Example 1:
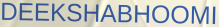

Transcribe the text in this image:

DEEKSHABHOOMI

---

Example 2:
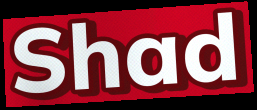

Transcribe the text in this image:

Shad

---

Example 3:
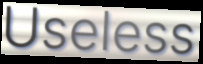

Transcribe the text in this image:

Useless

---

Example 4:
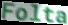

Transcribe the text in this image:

Folta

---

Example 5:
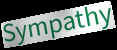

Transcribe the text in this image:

Sympathy